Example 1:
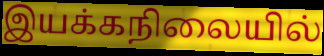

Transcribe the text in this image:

இயக்கநிலையில்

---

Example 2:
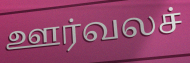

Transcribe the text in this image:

ஊர்வலச்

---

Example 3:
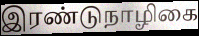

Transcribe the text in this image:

இரண்டுநாழிகை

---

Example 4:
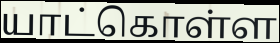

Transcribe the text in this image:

யாட்கொள்ள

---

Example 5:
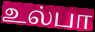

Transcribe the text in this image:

உல்பா